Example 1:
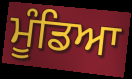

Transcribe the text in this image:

ਮੂੰਡਿਆ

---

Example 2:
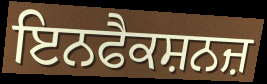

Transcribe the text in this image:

ਇਨਫੈਕਸ਼ਨਜ਼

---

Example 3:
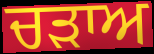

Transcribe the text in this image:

ਚੜਾਅ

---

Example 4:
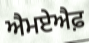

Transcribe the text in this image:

ਐਮਏਐਫ਼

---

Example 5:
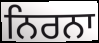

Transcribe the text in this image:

ਨਿਰਨਾ